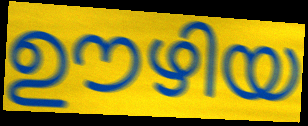
ഊഴിയ